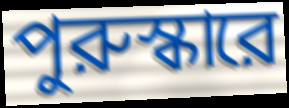
পুরুস্কারে